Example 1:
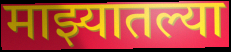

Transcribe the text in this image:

माझ्यातल्या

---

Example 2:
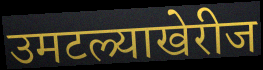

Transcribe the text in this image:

उमटल्याखेरीज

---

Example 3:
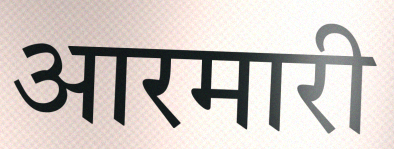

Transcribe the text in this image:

आरमारी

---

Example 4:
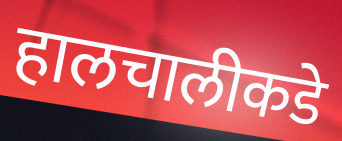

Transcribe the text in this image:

हालचालीकडे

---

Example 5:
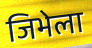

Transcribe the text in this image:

जिभेला